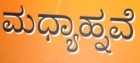
ಮಧ್ಯಾಹ್ನವೆ